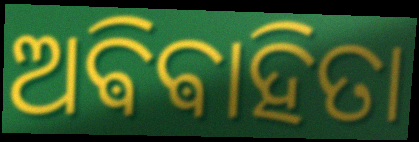
ଅଵିଵାହିତା